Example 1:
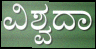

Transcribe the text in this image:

ವಿಶ್ವದಾ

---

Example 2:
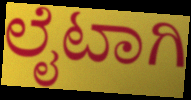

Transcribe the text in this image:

ಲೈಟಾಗಿ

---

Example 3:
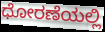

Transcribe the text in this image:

ಧೋರಣೆಯಲ್ಲಿ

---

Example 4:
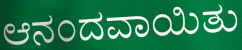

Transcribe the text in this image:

ಆನಂದವಾಯಿತು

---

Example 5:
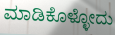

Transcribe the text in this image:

ಮಾಡಿಕೊಳ್ಳೋದು